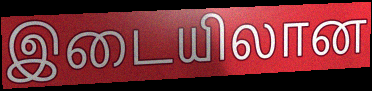
இடையிலான